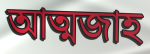
আত্মজাহ